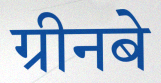
ग्रीनबे